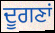
ਦੂਗਣਾਂ